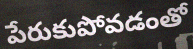
పేరుకుపోవడంతో